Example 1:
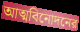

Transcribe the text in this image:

আত্মবিনোদনের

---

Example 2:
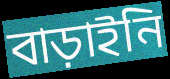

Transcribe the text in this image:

বাড়াইনি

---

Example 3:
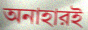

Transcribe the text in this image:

অনাহারই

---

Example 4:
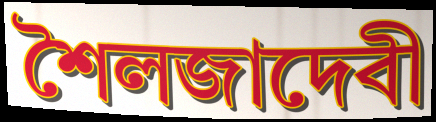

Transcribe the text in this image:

শৈলজাদেবী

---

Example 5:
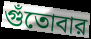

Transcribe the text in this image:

গুঁতোবার